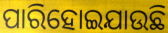
ପାରିହୋଇଯାଉଛି